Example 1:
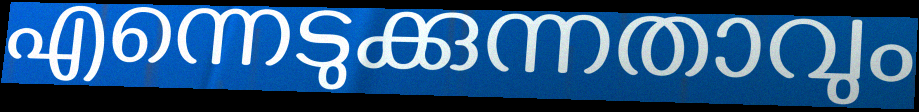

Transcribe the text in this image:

എന്നെടുക്കുന്നതാവും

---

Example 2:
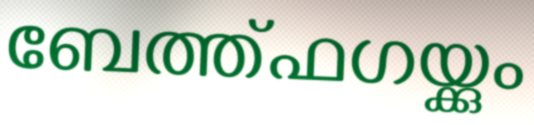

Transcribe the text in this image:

ബേത്ത്ഫഗയ്ക്കും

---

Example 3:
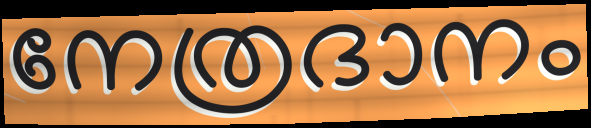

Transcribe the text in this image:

നേത്രദാനം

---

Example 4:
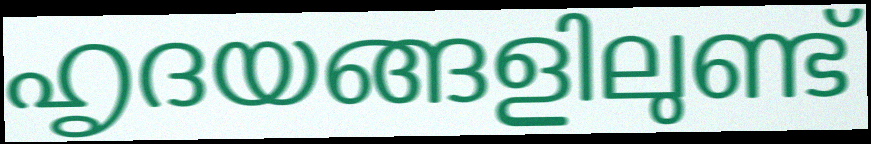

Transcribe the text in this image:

ഹൃദയങ്ങളിലുണ്ട്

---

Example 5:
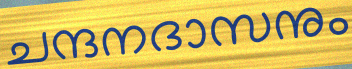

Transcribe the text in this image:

ചന്ദനദാസനും